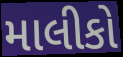
માલીકો